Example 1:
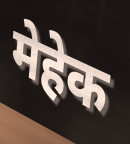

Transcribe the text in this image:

मेहेक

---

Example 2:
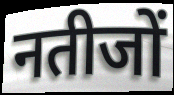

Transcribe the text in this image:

नतीजों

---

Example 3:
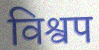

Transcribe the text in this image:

विश्वप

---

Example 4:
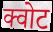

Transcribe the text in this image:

क्वोट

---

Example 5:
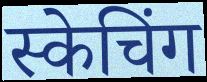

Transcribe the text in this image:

स्केचिंग